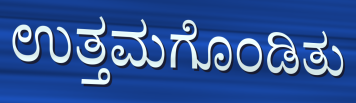
ಉತ್ತಮಗೊಂಡಿತು